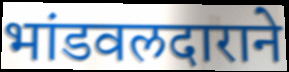
भांडवलदाराने